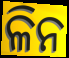
ଳିନ